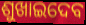
ଶୁଖାଇଦେବ